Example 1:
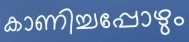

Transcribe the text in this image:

കാണിച്ചപ്പോഴും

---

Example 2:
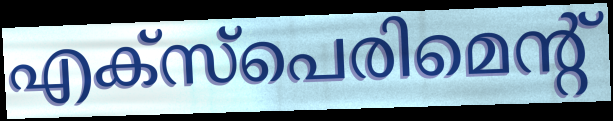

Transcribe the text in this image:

എക്സ്പെരിമെന്റ്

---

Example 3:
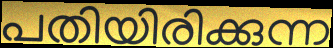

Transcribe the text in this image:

പതിയിരിക്കുന്ന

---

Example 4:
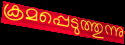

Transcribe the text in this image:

ക്രമപ്പെടുത്തുന്നു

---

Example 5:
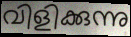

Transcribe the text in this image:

വിളിക്കുന്നു